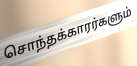
சொந்தக்காரர்களும்